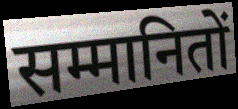
सम्मानितों